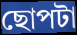
ছোপটা